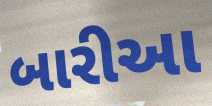
બારીઆ